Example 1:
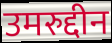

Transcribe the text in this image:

उमरुद्दीन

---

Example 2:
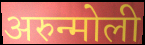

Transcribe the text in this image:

अरुन्मोली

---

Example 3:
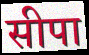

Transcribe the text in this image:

सीपा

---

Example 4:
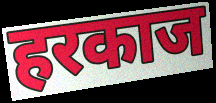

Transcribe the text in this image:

हरकाज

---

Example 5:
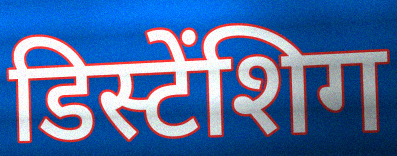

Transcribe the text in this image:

डिस्टेंशिग